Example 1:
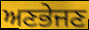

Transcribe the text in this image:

ਅਣਭੇਜਣ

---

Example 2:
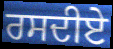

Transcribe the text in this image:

ਰਸਦੀਏ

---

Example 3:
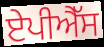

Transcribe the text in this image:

ਏਪੀਐੱਸ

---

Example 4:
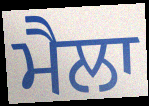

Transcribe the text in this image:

ਮੈਲਾ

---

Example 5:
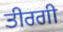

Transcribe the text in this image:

ਤੀਰਗੀ